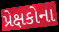
પ્રેક્ષકોના